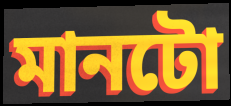
মানটো